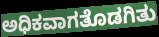
ಅಧಿಕವಾಗತೊಡಗಿತು